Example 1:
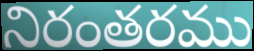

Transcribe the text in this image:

నిరంతరము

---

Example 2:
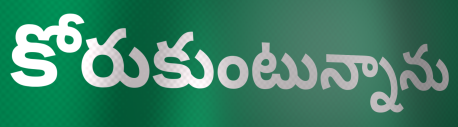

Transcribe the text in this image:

కోరుకుంటున్నాను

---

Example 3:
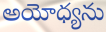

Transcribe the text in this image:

అయోధ్యను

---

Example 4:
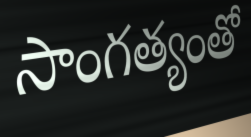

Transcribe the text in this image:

సాంగత్యంతో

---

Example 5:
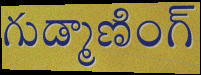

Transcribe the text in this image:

గుడ్మాణింగ్